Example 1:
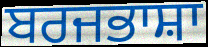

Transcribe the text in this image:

ਬਰਜਭਾਸ਼ਾ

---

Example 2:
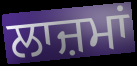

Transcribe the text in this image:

ਲਾਜ਼ਮਾਂ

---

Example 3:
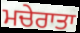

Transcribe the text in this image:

ਮਚੇਰਾਤਾ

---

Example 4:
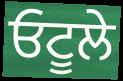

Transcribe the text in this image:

ਓਟੂਲੇ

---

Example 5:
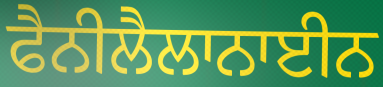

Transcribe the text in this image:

ਫੈਨੀਲੈਲਾਨਾਈਨ